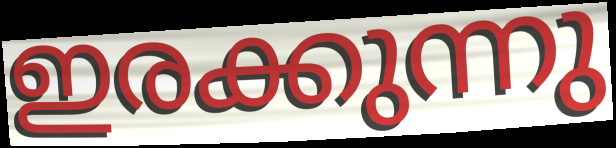
ഇരക്കുന്നു